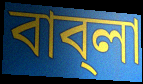
বাব্‌লা